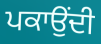
ਪਕਾਉਂਦੀ